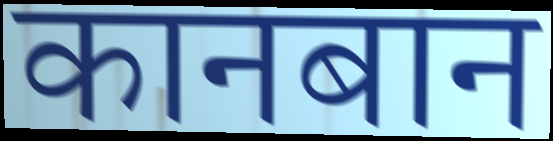
कानबान